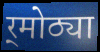
र्मोठ्या